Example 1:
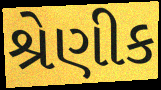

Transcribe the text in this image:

શ્રેણીક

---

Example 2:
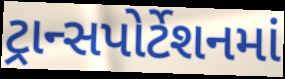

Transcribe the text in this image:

ટ્રાન્સપોર્ટેશનમાં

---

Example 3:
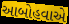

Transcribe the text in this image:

આબોહવાએ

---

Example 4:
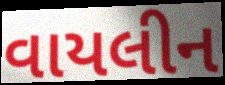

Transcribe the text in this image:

વાયલીન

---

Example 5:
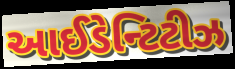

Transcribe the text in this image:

આઈડેન્ટિટીઝ